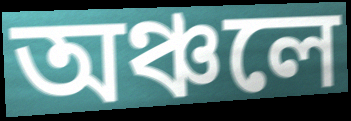
অঞ্চলে